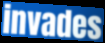
invades